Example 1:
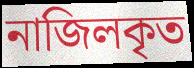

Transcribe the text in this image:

নাজিলকৃত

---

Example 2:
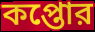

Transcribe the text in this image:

কপ্তোর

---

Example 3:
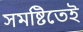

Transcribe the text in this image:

সমষ্টিতেই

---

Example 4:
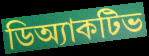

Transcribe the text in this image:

ডিঅ্যাকটিভ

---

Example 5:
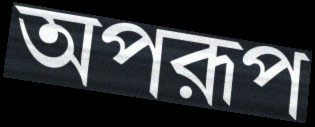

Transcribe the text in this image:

অপরূপ